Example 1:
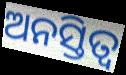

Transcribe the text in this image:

ଅନସ୍ତିତ୍ୱ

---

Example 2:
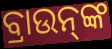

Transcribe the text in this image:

ବ୍ରାଉନ୍‌ଙ୍କ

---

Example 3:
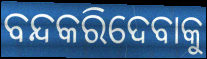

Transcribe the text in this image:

ବନ୍ଦକରିଦେବାକୁ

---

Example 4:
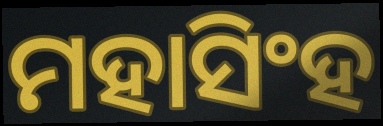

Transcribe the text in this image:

ମହାସିଂହ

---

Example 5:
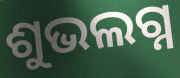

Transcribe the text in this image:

ଶୁଭଲଗ୍ନ